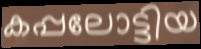
കപ്പലോട്ടിയ